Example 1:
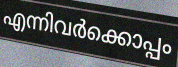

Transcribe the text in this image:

എന്നിവർക്കൊപ്പം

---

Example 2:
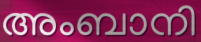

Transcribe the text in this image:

അംബാനി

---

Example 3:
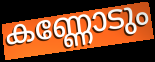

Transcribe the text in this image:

കണ്ണോടും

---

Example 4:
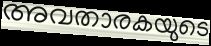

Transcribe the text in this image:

അവതാരകയുടെ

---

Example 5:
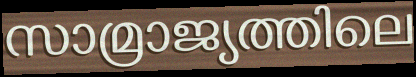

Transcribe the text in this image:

സാമ്രാജ്യത്തിലെ